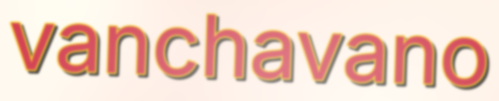
vanchavano